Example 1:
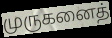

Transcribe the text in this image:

முருகனைத்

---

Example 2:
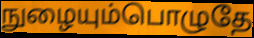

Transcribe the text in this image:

நுழையும்பொழுதே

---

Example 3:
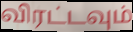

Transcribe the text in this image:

விரட்டவும்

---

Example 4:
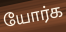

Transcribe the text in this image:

யோர்க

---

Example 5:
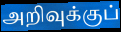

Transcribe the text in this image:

அறிவுக்குப்